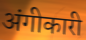
अंगीकारी